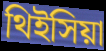
থিইসিয়া